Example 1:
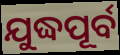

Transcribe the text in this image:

ଯୁଦ୍ଧପୂର୍ବ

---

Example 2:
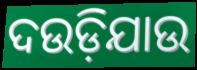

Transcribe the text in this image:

ଦଉଡ଼ିଯାଉ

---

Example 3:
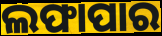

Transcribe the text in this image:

ଲଫାପାର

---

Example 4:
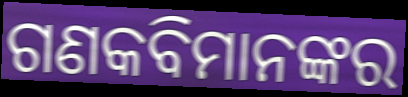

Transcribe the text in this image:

ଗଣକବିମାନଙ୍କର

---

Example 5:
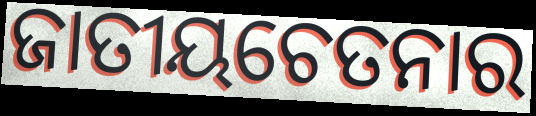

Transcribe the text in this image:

ଜାତୀୟଚେତନାର